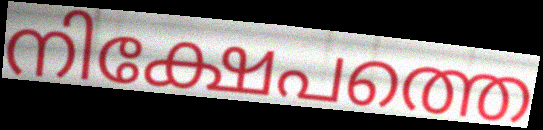
നിക്ഷേപത്തെ